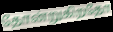
தோன்றுகிறதோ